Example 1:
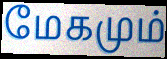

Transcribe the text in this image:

மேகமும்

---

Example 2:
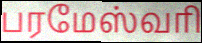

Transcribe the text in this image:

பரமேஸ்வரி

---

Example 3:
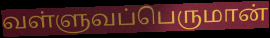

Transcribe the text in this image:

வள்ளுவப்பெருமான்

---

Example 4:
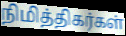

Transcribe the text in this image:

நிமித்திகர்கள்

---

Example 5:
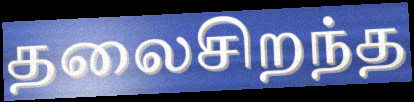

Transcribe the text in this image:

தலைசிறந்த